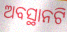
ଅବସ୍ଥାନଟି